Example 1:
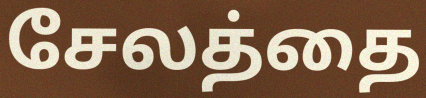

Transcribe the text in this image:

சேலத்தை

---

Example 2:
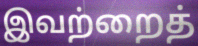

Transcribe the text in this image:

இவற்றைத்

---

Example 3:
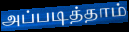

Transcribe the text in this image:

அப்படித்தாம்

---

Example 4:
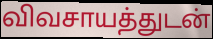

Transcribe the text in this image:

விவசாயத்துடன்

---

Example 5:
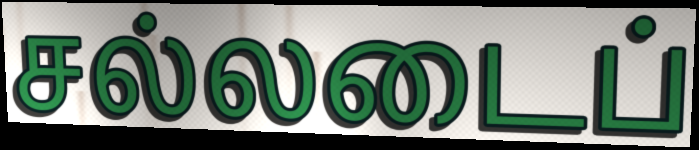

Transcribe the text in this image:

சல்லடைப்